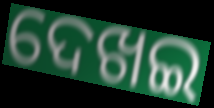
ଦେଖଇ